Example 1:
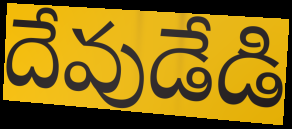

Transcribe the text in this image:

దేవుడేడి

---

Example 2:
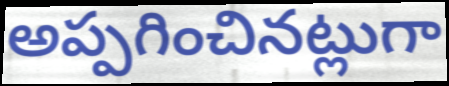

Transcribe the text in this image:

అప్పగించినట్లుగా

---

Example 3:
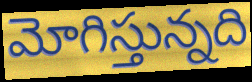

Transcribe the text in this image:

మోగిస్తున్నది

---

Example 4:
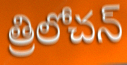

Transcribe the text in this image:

త్రిలోచన్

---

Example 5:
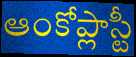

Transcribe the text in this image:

ఆంకోప్లాస్టీ